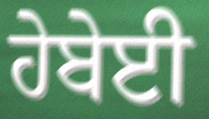
ਹੇਬੇਈ